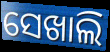
ସେଖାଲି